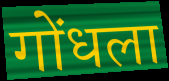
गोंधला